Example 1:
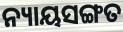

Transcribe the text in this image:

ନ୍ୟାୟସଙ୍ଗତ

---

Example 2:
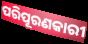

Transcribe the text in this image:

ପରିପୂରଣକାରୀ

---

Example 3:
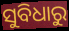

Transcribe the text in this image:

ସୁବିଧାରୁ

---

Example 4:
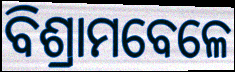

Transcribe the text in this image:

ବିଶ୍ରାମବେଳେ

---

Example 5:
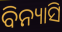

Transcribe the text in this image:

ବିନ୍ୟାସି